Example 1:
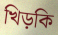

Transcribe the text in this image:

খিড়কি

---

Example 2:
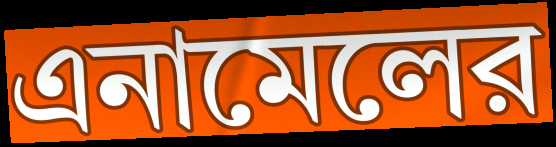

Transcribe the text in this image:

এনামেলের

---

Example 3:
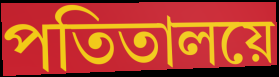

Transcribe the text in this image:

পতিতালয়ে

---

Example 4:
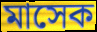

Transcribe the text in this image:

মাসেক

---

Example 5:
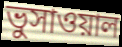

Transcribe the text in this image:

ভুসাওয়াল